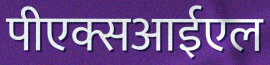
पीएक्सआईएल